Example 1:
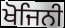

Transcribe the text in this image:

ਖੋਜਿਨੀ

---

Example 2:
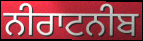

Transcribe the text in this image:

ਨੀਰਾਟਨੀਬ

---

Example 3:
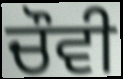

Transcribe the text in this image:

ਚੌਵੀ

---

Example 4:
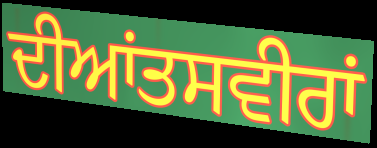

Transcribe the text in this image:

ਦੀਆਂਤਸਵੀਰਾਂ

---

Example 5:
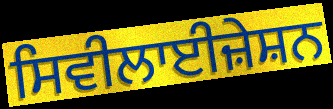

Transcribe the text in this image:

ਸਿਵੀਲਾਈਜ਼ੇਸ਼ਨ